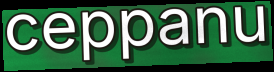
ceppanu